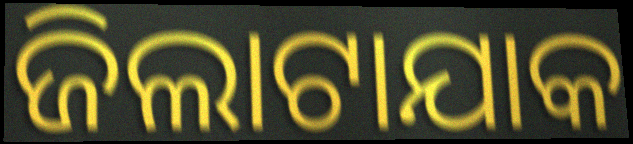
ଜିଲାଟାଯାକ